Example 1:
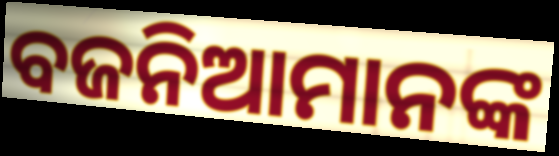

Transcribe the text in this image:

ବଜନିଆମାନଙ୍କ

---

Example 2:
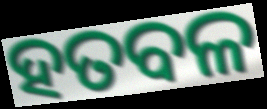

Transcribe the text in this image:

ହତବଳ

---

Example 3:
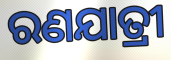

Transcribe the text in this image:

ରଣଯାତ୍ରୀ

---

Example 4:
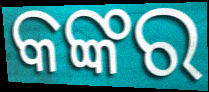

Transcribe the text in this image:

କଙ୍କର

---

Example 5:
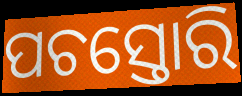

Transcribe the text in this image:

ପଚସ୍ତୋରି